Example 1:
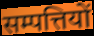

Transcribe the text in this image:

सम्पत्तियों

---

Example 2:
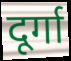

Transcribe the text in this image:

दूर्गा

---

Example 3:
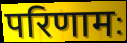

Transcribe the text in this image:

परिणामः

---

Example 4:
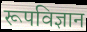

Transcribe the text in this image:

रूपविज्ञान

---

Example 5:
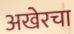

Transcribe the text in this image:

अखेरचा